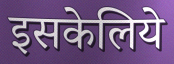
इसकेलिये